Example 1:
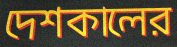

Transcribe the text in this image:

দেশকালের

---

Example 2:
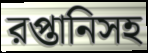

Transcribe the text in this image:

রপ্তানিসহ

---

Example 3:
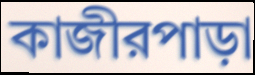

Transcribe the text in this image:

কাজীরপাড়া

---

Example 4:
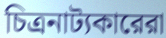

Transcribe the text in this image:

চিত্রনাট্যকারেরা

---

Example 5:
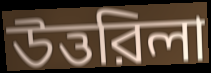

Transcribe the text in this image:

উত্তরিলা